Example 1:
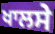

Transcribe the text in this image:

ਖਾਲਸੇ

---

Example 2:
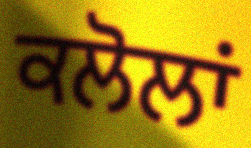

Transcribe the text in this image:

ਕਲੋਲਾਂ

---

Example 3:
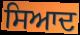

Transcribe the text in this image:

ਸਿਆਦ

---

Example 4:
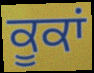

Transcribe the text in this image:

ਕੂਕਾਂ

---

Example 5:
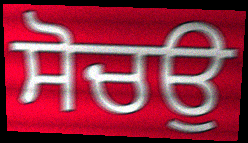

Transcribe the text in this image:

ਸੋਚਉ